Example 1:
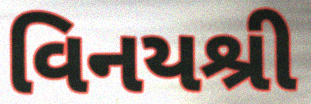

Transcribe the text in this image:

વિનયશ્રી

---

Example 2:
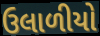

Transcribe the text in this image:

ઉલાળીયો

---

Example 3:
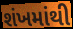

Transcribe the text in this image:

શંખમાંથી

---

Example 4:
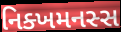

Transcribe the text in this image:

નિક્ખમનસ્સ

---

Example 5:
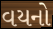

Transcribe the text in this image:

વયનો